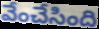
వేంచేసింది